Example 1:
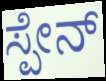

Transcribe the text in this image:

ಸ್ಪೇನ್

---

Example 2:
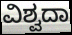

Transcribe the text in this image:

ವಿಶ್ವದಾ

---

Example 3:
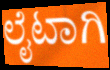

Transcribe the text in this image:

ಲೈಟಾಗಿ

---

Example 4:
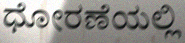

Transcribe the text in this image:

ಧೋರಣೆಯಲ್ಲಿ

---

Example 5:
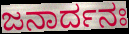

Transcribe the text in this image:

ಜನಾರ್ದನಃ